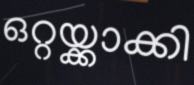
ഒറ്റയ്ക്കാക്കി